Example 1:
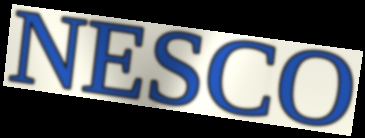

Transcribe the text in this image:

NESCO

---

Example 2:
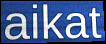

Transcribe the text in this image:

aikat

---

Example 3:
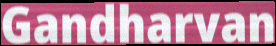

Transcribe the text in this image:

Gandharvan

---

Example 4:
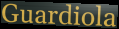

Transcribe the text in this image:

Guardiola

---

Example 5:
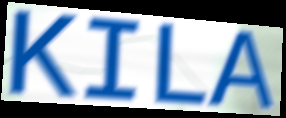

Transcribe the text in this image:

KILA